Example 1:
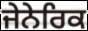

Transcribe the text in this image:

ਜੇਨੇਰਿਕ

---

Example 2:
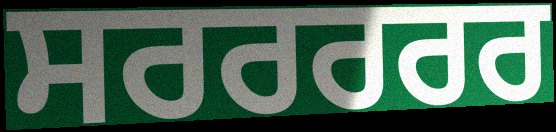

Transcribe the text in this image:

ਸਰਰਰਰਰ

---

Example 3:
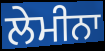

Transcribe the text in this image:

ਲੇਮੀਨਾ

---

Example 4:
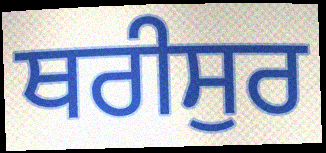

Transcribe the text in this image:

ਥਰੀਸੁਰ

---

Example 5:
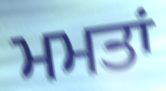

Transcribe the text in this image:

ਮਮਤਾਂ